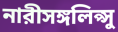
নারীসঙ্গলিপ্সু